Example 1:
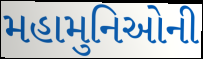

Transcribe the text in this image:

મહામુનિઓની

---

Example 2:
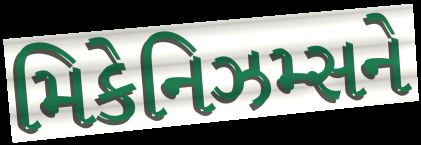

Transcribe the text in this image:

મિકેનિઝમ્સને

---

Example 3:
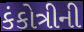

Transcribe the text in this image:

કંકોત્રીની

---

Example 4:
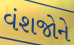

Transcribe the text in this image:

વંશજોને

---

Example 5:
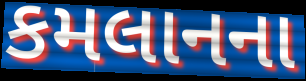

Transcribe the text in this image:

કમલાનના